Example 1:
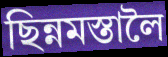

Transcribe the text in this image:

ছিন্নমস্তালৈ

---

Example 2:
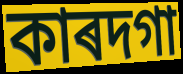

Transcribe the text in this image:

কাৰদগা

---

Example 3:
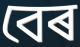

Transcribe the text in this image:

বেৰ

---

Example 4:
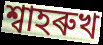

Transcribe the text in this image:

শ্বাহৰুখ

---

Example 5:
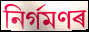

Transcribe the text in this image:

নিৰ্গমণৰ